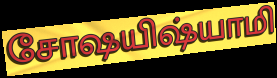
சோஷயிஷ்யாமி